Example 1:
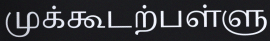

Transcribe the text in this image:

முக்கூடற்பள்ளு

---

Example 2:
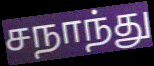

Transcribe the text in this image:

சநாந்து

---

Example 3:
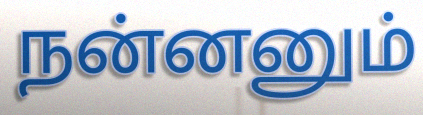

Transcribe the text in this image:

நன்னனும்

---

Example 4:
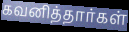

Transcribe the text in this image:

கவனித்தார்கள்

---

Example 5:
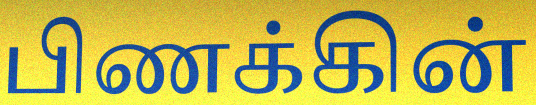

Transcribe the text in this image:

பிணக்கின்